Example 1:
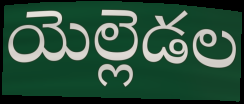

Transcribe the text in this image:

యెల్లెడల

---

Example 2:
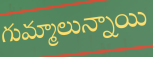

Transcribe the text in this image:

గుమ్మాలున్నాయి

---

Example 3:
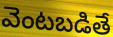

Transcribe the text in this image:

వెంటబడితే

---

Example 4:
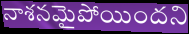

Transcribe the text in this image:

నాశనమైపోయిందని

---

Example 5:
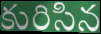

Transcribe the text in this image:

కురిసిన